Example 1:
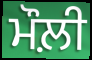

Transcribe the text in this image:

ਮੌਲ਼ੀ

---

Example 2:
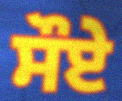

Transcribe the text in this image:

ਸੌਏ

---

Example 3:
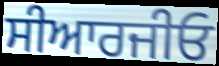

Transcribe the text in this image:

ਸੀਆਰਜੀਓ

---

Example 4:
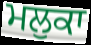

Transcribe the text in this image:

ਮਲੁਕਾ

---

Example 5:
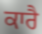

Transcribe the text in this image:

ਕਾਰੈ